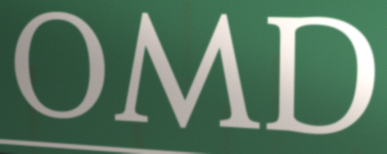
OMD